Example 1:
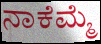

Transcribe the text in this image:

ನಾಕೆಮ್ಮೆ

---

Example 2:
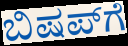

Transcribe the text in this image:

ಬಿಷಪ್‌ಗೆ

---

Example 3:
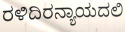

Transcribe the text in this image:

ರಳಿದಿರನ್ಯಾಯದಲಿ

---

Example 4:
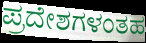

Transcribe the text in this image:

ಪ್ರದೇಶಗಳಂತಹ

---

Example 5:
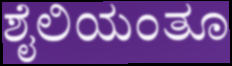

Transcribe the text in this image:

ಶೈಲಿಯಂತೂ